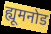
ह्यूमनोड